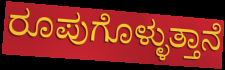
ರೂಪುಗೊಳ್ಳುತ್ತಾನೆ